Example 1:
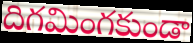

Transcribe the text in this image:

దిగమింగకుండా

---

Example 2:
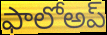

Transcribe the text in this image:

ఫాలోఅప్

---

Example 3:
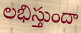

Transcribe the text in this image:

లభిస్తుందా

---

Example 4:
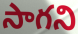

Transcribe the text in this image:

సాగని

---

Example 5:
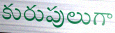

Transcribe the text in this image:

కురుపులుగా